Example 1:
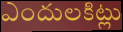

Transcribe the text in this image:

ఎందులకిట్లు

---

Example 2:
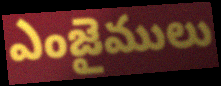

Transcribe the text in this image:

ఎంజైములు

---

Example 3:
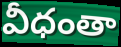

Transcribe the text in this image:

వీధంతా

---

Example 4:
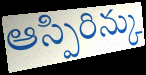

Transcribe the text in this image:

ఆస్పిరిన్కు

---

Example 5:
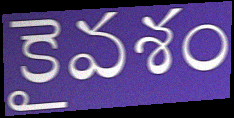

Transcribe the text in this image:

కైవశం